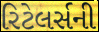
રિટેલર્સની